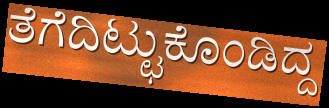
ತೆಗೆದಿಟ್ಟುಕೊಂಡಿದ್ದ